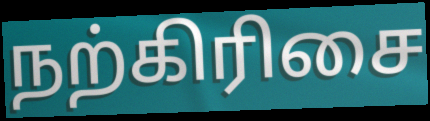
நற்கிரிசை